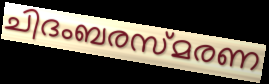
ചിദംബരസ്മരണ